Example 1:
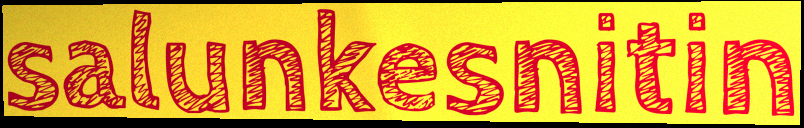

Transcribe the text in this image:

salunkesnitin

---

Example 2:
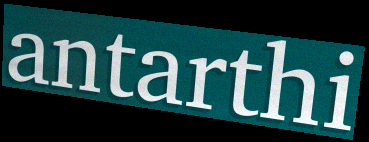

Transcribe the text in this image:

antarthi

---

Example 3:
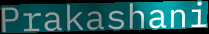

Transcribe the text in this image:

Prakashani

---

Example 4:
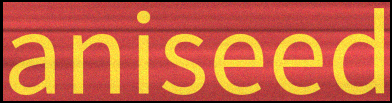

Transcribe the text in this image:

aniseed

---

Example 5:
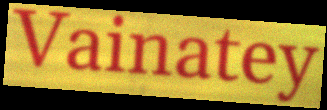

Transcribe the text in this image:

Vainatey